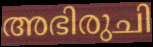
അഭിരുചി